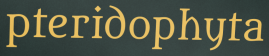
pteridophyta